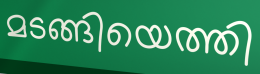
മടങ്ങിയെത്തി